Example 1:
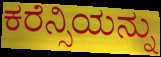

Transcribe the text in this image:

ಕರೆನ್ಸಿಯನ್ನು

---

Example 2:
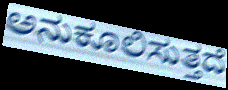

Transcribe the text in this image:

ಅನುಕೂಲಿಸುತ್ತದೆ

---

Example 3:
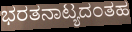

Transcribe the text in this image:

ಭರತನಾಟ್ಯದಂತಹ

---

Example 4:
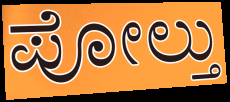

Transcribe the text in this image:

ಪೋಲ್ತು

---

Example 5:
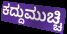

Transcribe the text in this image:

ಕದ್ದುಮುಚ್ಚಿ